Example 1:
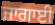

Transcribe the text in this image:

ਜਾਗਾਈ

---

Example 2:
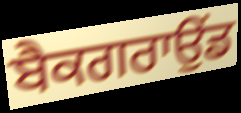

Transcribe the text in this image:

ਬੈਕਗਰਾਉਂਡ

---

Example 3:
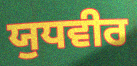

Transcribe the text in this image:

ਯੁਧਵੀਰ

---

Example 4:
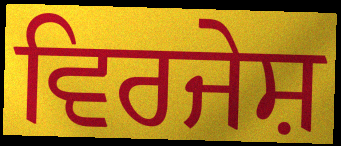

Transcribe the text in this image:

ਵਿਰਜੇਸ਼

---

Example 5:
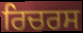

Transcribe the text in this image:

ਰਿਚਰਸ